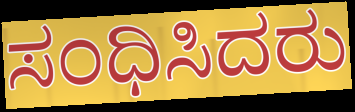
ಸಂಧಿಸಿದರು